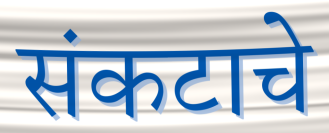
संकटाचे